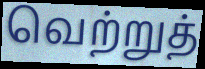
வெற்றுத்